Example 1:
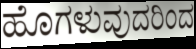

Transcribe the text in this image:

ಹೊಗಳುವುದರಿಂದ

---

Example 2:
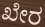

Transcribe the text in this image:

ಖೇರ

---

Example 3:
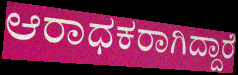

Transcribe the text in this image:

ಆರಾಧಕರಾಗಿದ್ದಾರೆ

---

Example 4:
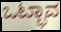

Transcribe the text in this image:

ಒಟ್ಟಾವ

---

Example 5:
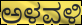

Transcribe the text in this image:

ಅಳವಳಿ